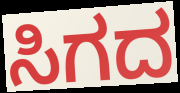
ಸಿಗದ